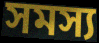
সমস্য